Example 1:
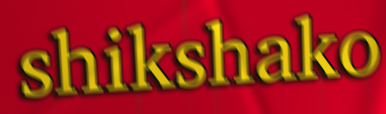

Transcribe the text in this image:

shikshako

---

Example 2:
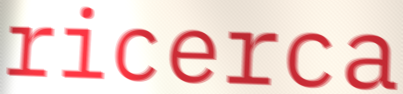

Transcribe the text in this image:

ricerca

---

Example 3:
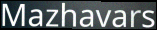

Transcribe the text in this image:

Mazhavars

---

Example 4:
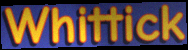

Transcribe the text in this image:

Whittick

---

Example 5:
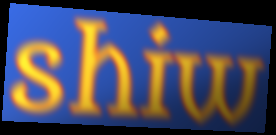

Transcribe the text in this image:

shiw